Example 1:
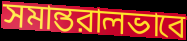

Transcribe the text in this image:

সমান্তরালভাবে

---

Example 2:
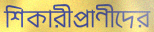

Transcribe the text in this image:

শিকারীপ্রাণীদের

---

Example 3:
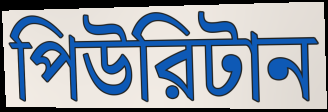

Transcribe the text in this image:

পিউরিটান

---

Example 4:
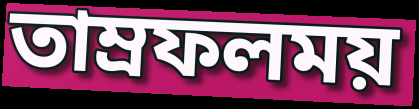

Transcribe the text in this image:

তাম্রফলময়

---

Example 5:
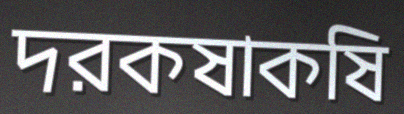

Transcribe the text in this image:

দরকষাকষি